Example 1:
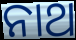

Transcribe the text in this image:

ନାଥ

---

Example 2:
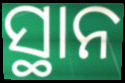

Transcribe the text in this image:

ସ୍ଥାନ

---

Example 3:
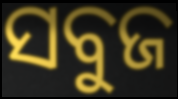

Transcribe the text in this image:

ସବୁଜ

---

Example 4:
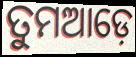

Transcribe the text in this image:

ତୁମଆଡ଼େ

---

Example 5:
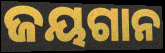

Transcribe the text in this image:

ଜୟଗାନ